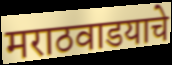
मराठवाडयाचे